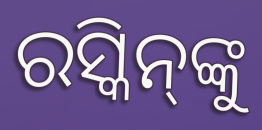
ରସ୍କିନ୍‌ଙ୍କୁ